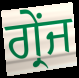
ਗ੍ਰੇਂਜ